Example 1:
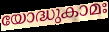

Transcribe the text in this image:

യോദ്ധുകാമഃ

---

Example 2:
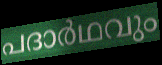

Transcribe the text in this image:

പദാർഥവും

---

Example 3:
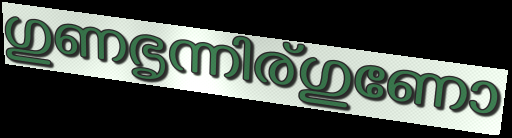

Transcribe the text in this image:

ഗുണഭൃന്നിര്ഗുണോ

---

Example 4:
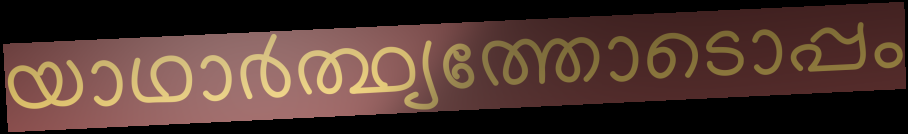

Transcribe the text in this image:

യാഥാർത്ഥ്യത്തോടൊപ്പം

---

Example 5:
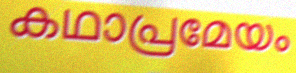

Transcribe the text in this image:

കഥാപ്രമേയം